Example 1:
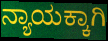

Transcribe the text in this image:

ನ್ಯಾಯಕ್ಕಾಗಿ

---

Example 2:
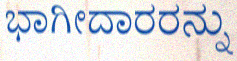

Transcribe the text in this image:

ಭಾಗೀದಾರರನ್ನು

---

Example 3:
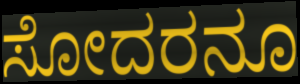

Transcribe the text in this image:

ಸೋದರನೂ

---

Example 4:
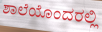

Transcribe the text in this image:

ಶಾಲೆಯೊಂದರಲ್ಲಿ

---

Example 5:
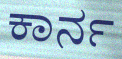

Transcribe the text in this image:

ಕಾರ್ನ